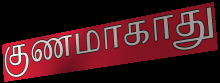
குணமாகாது